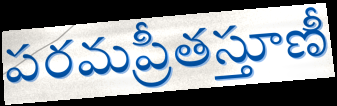
పరమప్రీతస్తూణీ